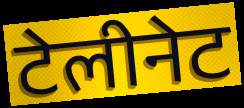
टेलीनेट